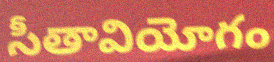
సీతావియోగం